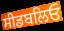
ਸੀਡਬਲਿਓ